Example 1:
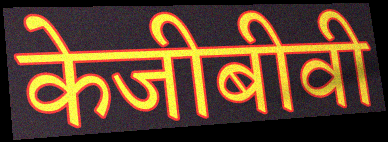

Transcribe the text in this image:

केजीबीवी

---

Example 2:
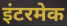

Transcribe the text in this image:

इंटरमेक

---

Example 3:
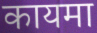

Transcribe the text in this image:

कायमा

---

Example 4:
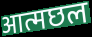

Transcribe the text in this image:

आत्मछल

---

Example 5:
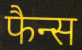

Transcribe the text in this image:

फैन्स